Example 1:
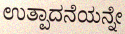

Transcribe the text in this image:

ಉತ್ಪಾದನೆಯನ್ನೇ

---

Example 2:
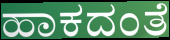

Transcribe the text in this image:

ಹಾಕದಂತೆ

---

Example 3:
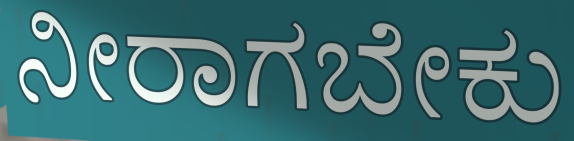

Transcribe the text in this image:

ನೀರಾಗಬೇಕು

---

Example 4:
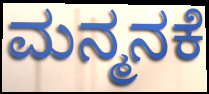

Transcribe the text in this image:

ಮನ್ಮನಕೆ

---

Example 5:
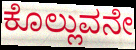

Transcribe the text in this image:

ಕೊಲ್ಲುವನೇ